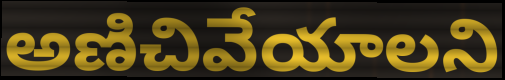
అణిచివేయాలని